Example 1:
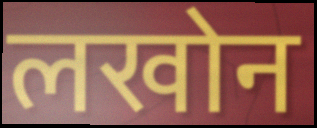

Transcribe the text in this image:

लखोन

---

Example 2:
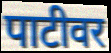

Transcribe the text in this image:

पाटीवर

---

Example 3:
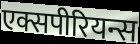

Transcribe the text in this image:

एक्सपीरियन्स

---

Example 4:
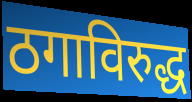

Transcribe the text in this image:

ठगाविरुद्ध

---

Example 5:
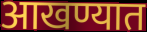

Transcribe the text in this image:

आखण्यात